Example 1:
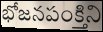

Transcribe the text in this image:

భోజనపంక్తిని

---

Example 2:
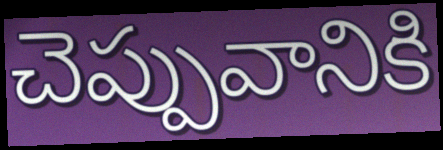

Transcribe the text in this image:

చెప్పువానికి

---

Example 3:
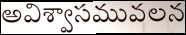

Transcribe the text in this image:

అవిశ్వాసమువలన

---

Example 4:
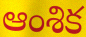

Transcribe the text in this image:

ఆంశిక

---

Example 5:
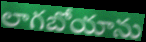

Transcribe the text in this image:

లాగబోయాను